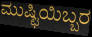
ಮುಷ್ಟಿಯಿಬ್ಬರ